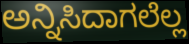
ಅನ್ನಿಸಿದಾಗಲೆಲ್ಲ